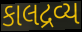
કાલદ્રવ્ય